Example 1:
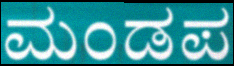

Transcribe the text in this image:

ಮಂಡಪ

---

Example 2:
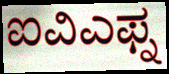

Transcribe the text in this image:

ಐವಿಎಫ್ನ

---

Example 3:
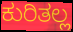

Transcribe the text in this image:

ಕುರಿತಲ್ಲ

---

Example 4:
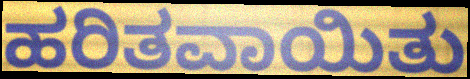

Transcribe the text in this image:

ಹರಿತವಾಯಿತು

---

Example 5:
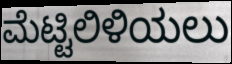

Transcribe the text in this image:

ಮೆಟ್ಟಿಲಿಳಿಯಲು